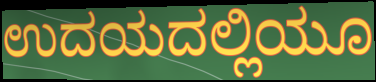
ಉದಯದಲ್ಲಿಯೂ